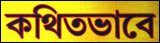
কথিতভাবে